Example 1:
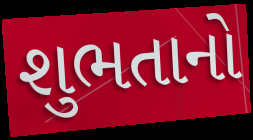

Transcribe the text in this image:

શુભતાનો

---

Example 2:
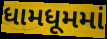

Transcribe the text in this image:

ધામધૂમમાં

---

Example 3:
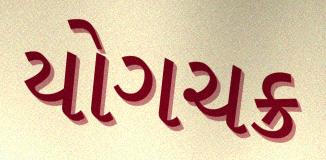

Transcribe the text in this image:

યોગચક્ર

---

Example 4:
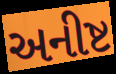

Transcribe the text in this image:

અનીષ્ટ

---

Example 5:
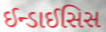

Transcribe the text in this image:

ઈન્ડાઈસિસ